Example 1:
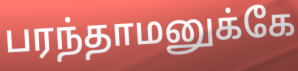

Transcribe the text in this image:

பரந்தாமனுக்கே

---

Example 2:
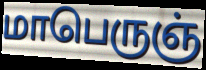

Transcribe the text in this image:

மாபெருஞ்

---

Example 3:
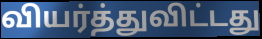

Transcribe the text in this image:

வியர்த்துவிட்டது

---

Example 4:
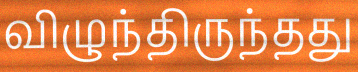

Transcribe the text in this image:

விழுந்திருந்தது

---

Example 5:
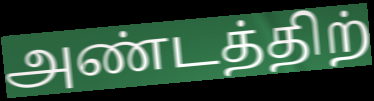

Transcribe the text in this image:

அண்டத்திற்